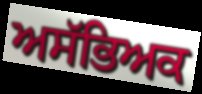
ਅਸੱਭਿਅਕ